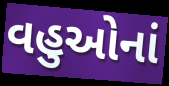
વહુઓનાં